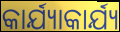
କାର୍ଯ୍ୟାକାର୍ଯ୍ୟ